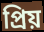
প্ৰিয়